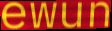
ewun